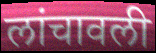
लांचावली